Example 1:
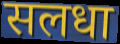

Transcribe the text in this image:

सलधा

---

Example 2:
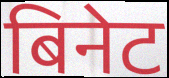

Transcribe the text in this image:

बिनेट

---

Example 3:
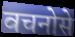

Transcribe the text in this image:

वचनोसे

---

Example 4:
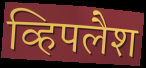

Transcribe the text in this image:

व्हिपलैश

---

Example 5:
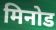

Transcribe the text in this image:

मिनोड